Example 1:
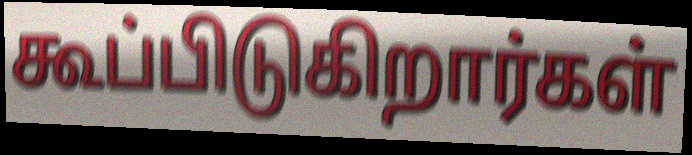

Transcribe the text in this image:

கூப்பிடுகிறார்கள்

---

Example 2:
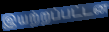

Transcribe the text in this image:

இயற்றப்பட்டன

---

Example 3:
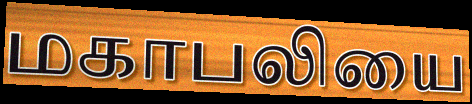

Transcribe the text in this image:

மகாபலியை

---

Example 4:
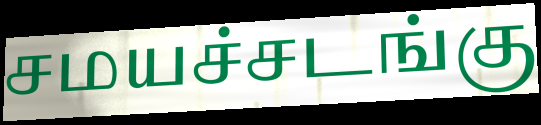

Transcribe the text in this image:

சமயச்சடங்கு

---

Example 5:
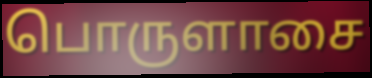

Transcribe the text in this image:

பொருளாசை